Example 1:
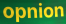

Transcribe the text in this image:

opnion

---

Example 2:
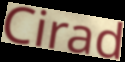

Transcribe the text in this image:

Cirad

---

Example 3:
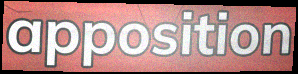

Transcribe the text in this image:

apposition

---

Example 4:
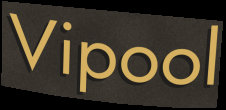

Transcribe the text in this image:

Vipool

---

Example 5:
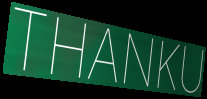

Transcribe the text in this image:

THANKU